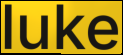
luke